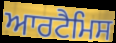
ਆਰਟੈਮਿਸ